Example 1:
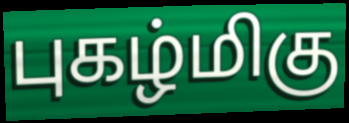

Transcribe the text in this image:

புகழ்மிகு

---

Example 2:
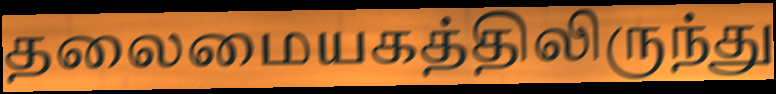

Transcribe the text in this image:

தலைமையகத்திலிருந்து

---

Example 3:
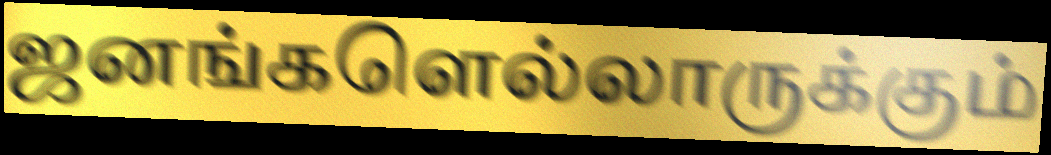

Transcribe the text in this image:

ஜனங்களெல்லாருக்கும்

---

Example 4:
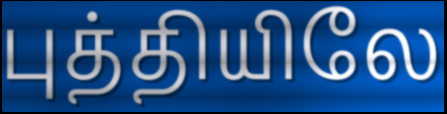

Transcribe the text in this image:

புத்தியிலே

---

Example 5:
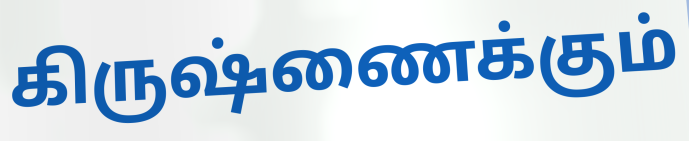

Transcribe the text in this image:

கிருஷ்ணைக்கும்